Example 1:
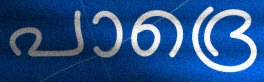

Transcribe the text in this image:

പാദ്രെ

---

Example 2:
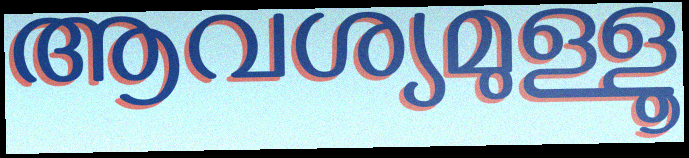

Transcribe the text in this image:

ആവശ്യമുള്ളൂ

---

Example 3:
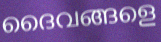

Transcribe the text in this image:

ദൈവങ്ങളെ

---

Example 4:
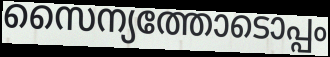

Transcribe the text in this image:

സൈന്യത്തോടൊപ്പം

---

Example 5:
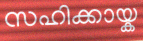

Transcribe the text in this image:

സഹിക്കായ്ക